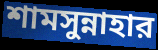
শামসুন্নাহার